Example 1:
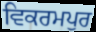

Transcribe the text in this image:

ਵਿਕਰਮਪੁਰ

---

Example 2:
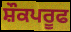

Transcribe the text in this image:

ਸ਼ੌਕਪਰੂਫ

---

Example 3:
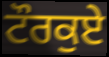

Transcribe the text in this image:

ਟੌਰਕੁਏ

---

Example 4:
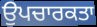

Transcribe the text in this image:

ਉਪਚਾਰਕਤਾ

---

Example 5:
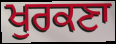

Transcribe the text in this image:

ਖੁਰਕਣਾ